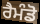
ਰੈਮੰਡੋ